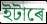
ইটাৰে